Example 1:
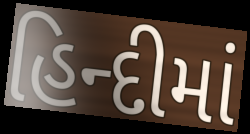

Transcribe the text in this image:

હિન્દીમાં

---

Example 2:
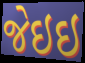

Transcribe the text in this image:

જેઇઇ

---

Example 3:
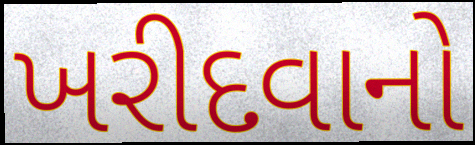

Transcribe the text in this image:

ખરીદવાનો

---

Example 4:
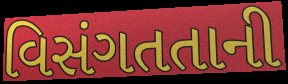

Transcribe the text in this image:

વિસંગતતાની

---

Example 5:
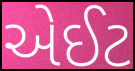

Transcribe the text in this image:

એઈટ